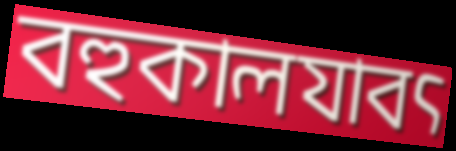
বহুকালযাবৎ